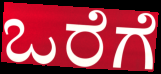
ಒರೆಗೆ